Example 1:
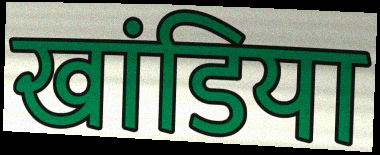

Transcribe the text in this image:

खांडिया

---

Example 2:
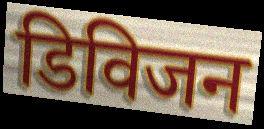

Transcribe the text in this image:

डिविजन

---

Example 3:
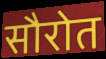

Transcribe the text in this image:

सौरोत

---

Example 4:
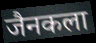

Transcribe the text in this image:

जैनकला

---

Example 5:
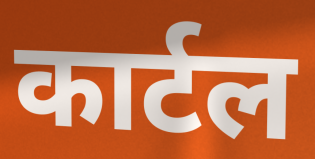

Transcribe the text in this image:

कार्टल